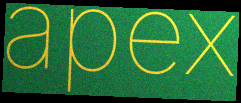
apex